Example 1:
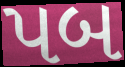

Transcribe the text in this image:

પબ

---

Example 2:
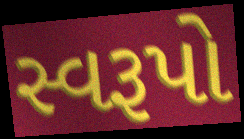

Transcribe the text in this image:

સ્વરૂપો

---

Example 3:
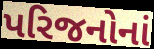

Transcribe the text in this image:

પરિજનોનાં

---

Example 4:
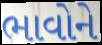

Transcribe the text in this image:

ભાવોને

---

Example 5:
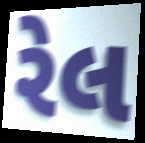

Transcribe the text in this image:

રેલ